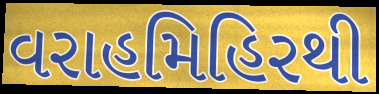
વરાહમિહિરથી